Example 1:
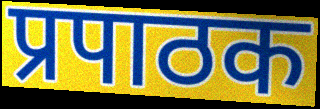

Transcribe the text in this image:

प्रपाठक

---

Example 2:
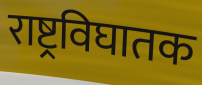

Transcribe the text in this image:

राष्ट्रविघातक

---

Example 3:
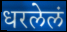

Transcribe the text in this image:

धरलेलं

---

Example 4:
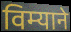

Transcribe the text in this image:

विम्याने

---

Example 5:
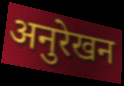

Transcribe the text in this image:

अनुरेखन